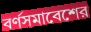
বর্ণসমাবেশের